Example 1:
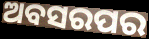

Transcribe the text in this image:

ଅବସରପର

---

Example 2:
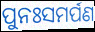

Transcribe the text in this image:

ପୁନଃସମର୍ପଣ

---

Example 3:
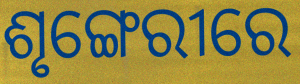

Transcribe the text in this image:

ଶୃଙ୍ଗେରୀରେ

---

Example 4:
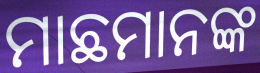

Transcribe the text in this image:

ମାଛମାନଙ୍କ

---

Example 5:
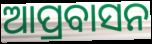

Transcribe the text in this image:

ଆପ୍ରବାସନ